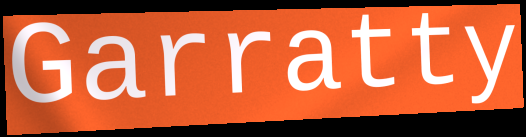
Garratty